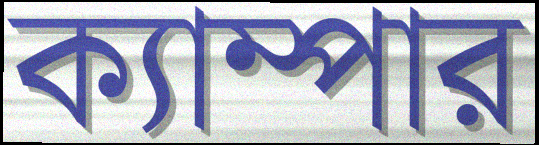
ক্যাম্পার